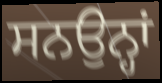
ਸਨਉਨ੍ਹਾਂ